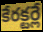
కేరక్టర్లే